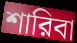
শারিবা